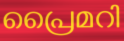
പ്രൈമറി